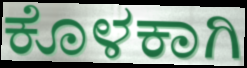
ಕೊಳಕಾಗಿ